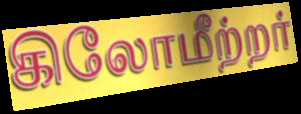
கிலோமீற்றர்